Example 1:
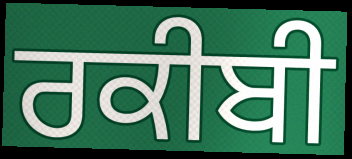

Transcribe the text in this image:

ਰਕੀਬੀ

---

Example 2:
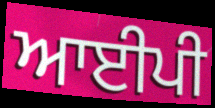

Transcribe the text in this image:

ਆਈਪੀ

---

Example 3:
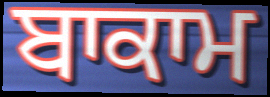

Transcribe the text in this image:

ਬਾਕਾਮ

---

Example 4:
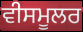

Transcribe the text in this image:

ਵੀਸਮੂਲਰ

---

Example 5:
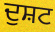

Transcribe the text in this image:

ਦੁਸ਼ਟ